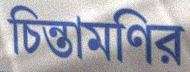
চিন্তামণির